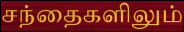
சந்தைகளிலும்